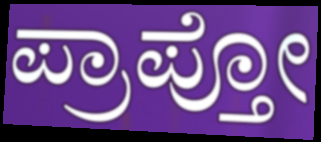
ಪ್ರಾಪ್ತೋ